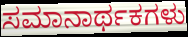
ಸಮಾನಾರ್ಥಕಗಳು